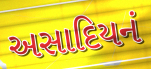
અસાદિયનં